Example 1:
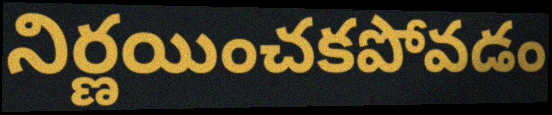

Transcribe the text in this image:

నిర్ణయించకపోవడం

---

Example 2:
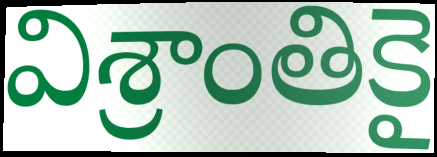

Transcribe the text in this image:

విశ్రాంతికై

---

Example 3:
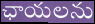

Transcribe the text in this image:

ఛాయలను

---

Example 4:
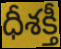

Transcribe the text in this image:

ధీశక్తీ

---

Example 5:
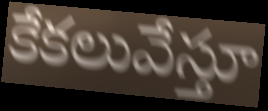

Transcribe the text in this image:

కేకలువేస్తూ